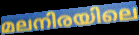
മലനിരയിലെ